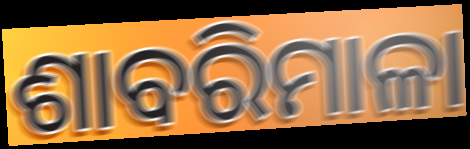
ଶାବରିମାଳା